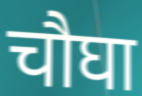
चौघा